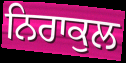
ਨਿਰਾਕੁਲ